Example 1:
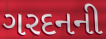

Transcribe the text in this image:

ગરદનની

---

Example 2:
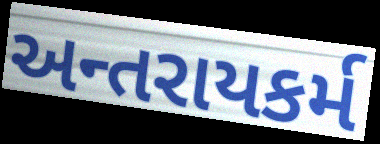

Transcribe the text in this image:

અન્તરાયકર્મ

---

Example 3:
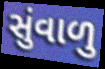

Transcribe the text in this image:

સુંવાળુ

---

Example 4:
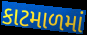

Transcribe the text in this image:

કાટમાળમાં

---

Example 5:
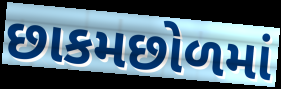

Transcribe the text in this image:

છાકમછોળમાં